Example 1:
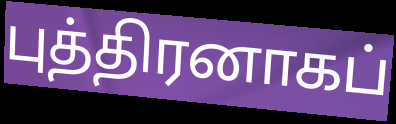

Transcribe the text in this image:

புத்திரனாகப்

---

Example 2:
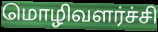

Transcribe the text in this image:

மொழிவளர்ச்சி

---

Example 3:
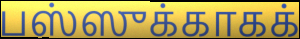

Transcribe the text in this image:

பஸ்ஸுக்காகக்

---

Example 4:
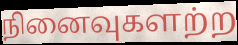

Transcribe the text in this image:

நினைவுகளற்ற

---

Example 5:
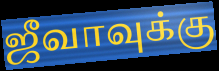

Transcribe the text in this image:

ஜீவாவுக்கு